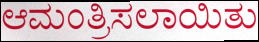
ಆಮಂತ್ರಿಸಲಾಯಿತು